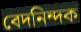
বেদনিন্দক